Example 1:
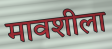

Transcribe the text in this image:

मावशीला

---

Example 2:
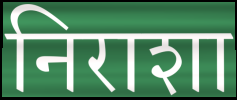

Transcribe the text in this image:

निराशा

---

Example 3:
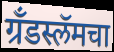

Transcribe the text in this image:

ग्रँडस्लॅमचा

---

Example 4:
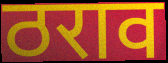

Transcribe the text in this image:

ठराव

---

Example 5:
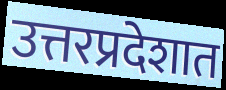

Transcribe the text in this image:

उत्तरप्रदेशात